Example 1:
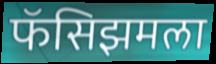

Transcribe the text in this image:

फॅसिझमला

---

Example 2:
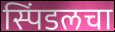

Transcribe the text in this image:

स्पिंडलचा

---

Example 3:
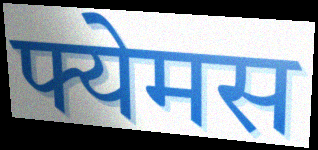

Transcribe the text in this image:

फ्येमस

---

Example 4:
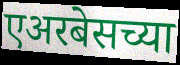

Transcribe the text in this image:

एअरबेसच्या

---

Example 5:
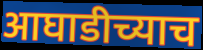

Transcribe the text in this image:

आघाडीच्याच